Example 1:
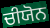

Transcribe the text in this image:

ਚੀਯੋਨ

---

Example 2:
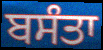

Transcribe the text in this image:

ਬਸੰਤਾ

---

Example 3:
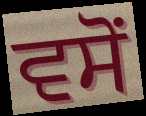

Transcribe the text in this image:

ਵਸੋਂ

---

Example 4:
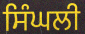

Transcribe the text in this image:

ਸਿੰਘਲੀ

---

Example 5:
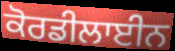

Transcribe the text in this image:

ਕੋਰਡੀਲਾਈਨ